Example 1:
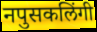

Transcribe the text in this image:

नपुसकलिंगी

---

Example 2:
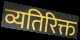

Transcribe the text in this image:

व्यतिरिक्त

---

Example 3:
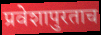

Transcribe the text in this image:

प्रवेशापुरताच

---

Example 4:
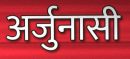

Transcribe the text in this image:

अर्जुनासी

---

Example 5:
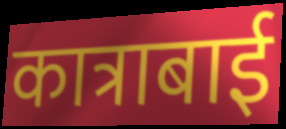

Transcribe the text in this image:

कात्राबाई